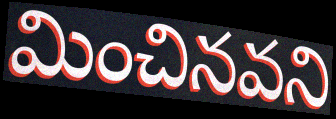
మించినవని